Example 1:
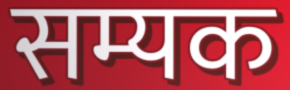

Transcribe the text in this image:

सम्‍यक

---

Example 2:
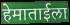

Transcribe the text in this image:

हेमाताईला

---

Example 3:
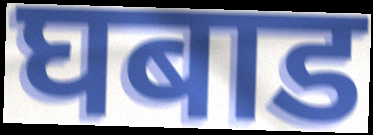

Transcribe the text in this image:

घबाड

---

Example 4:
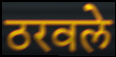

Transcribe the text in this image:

ठरवले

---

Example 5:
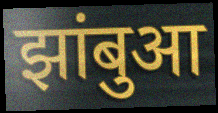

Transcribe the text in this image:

झांबुआ